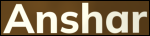
Anshar